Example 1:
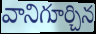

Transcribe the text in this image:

వానిగూర్చిన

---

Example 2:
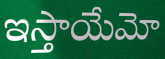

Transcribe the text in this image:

ఇస్తాయేమో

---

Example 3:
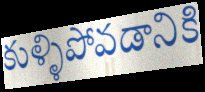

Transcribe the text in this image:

కుళ్ళిపోవడానికి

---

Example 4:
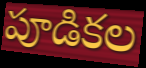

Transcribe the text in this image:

పూడికల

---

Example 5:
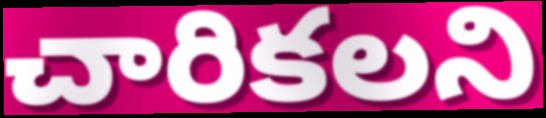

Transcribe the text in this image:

చారికలని